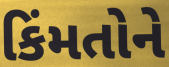
કિંમતોને